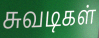
சுவடிகள்